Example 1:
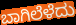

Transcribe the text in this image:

ಬಾಗಿಲೆಳೆದು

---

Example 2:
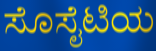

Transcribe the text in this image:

ಸೊಸೈಟಿಯ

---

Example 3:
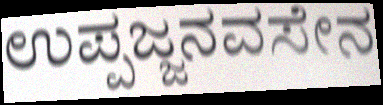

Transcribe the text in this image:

ಉಪ್ಪಜ್ಜನವಸೇನ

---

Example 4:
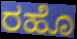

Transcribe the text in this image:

ರಹೊ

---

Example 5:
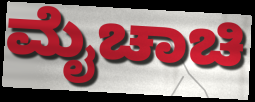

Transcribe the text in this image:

ಮೈಚಾಚಿ